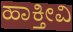
ಹಾಕ್ತೀವಿ